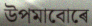
উপমাবোৰে